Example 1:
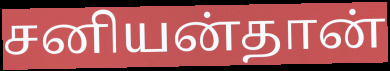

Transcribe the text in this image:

சனியன்தான்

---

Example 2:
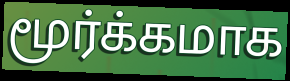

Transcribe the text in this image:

மூர்க்கமாக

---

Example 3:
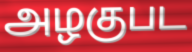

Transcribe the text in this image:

அழகுபட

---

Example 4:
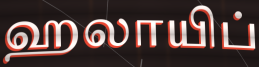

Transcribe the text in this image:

ஹலாயிப்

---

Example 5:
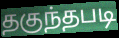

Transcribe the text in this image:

தகுந்தபடி